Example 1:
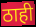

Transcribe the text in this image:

ठाही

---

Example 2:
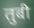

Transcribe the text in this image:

तुबी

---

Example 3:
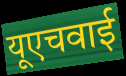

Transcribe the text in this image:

यूएचवाई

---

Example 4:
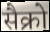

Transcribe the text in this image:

सैक्रो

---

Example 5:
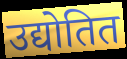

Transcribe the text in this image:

उद्योतित